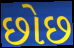
છોછ